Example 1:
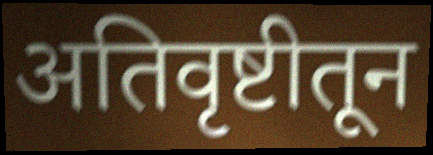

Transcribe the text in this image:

अतिवृष्टीतून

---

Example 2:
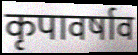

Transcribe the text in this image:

कृपावर्षाव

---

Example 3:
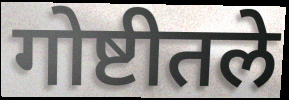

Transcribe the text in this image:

गोष्टीतले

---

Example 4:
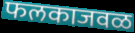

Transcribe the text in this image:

फलकाजवळ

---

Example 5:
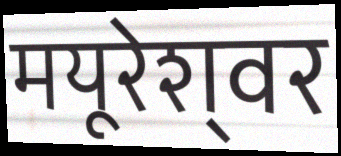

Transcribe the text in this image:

मयूरेश्वर